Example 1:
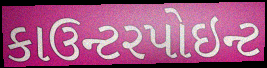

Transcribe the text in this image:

કાઉન્ટરપોઇન્ટ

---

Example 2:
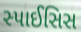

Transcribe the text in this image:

સ્પાઈસિસ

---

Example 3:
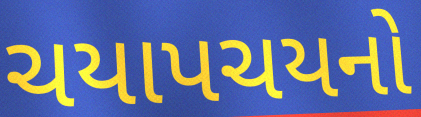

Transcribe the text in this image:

ચયાપચયનો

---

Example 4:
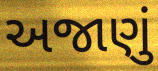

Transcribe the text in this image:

અજાણું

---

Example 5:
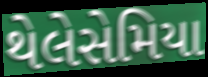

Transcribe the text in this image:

થેલેસેમિયા